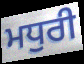
ਮਧੁਰੀ